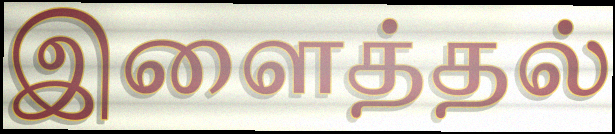
இளைத்தல்